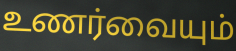
உணர்வையும்